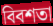
বিবশতা